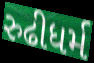
રુઢીધર્મ